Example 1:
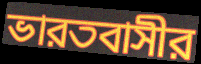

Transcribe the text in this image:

ভারতবাসীর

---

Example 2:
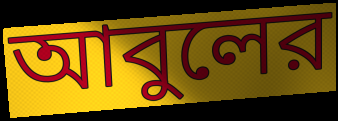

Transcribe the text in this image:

আবুলের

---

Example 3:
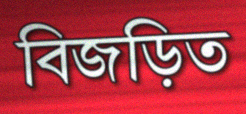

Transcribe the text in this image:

বিজড়িত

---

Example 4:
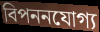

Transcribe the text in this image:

বিপননযোগ্য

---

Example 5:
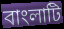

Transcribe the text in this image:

বাংলাটি